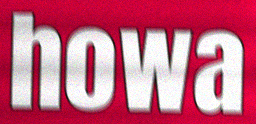
howa